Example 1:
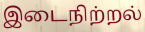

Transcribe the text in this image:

இடைநிற்றல்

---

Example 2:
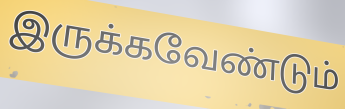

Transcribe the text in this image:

இருக்கவேண்டும்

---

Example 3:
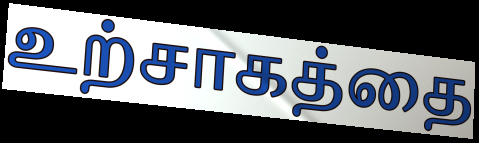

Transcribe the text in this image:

உற்சாகத்தை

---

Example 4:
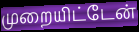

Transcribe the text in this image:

முறையிட்டேன்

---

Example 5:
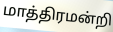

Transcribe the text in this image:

மாத்திரமன்றி